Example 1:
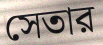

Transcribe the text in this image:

সেতার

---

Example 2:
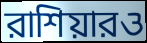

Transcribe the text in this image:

রাশিয়ারও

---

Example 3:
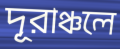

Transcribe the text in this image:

দূরাঞ্চলে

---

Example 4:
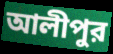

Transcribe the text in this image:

আলীপুর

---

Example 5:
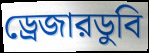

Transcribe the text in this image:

ড্রেজারডুবি